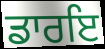
ਡਾਰਇ